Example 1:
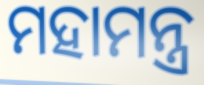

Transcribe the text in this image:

ମହାମନ୍ତ୍ର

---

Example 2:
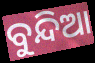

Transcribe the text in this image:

ବୁନ୍ଦିଆ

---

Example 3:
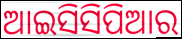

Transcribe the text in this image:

ଆଇସିସିପିଆର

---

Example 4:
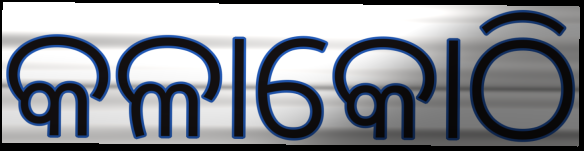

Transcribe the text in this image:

କଳାକୋଠି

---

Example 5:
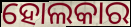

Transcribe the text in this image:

ହୋଲକାର